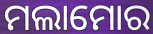
ମଲାମୋର